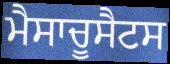
ਮੈਸਾਚੂਸੈਟਸ